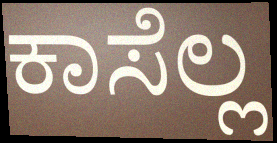
ಕಾಸೆಲ್ಲ